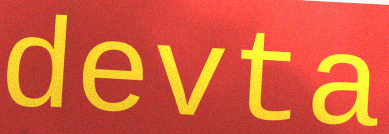
devta